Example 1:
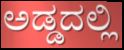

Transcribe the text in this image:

ಅಡ್ಡದಲ್ಲಿ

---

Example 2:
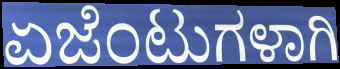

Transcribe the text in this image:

ಏಜೆಂಟುಗಳಾಗಿ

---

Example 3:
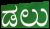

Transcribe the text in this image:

ಡಲು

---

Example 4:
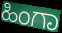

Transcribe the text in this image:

ಹಿಂಗಾ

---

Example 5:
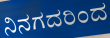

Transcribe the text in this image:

ನಿನಗದರಿಂದ